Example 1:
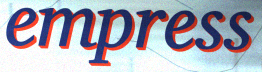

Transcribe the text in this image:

empress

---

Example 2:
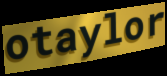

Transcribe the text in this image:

otaylor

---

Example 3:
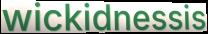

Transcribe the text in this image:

wickidnessis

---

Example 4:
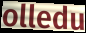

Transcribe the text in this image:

olledu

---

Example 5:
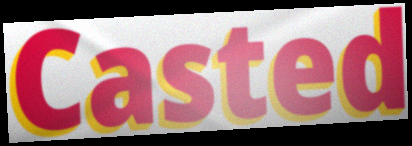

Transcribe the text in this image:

Casted